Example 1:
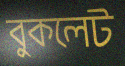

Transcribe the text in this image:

বুকলেট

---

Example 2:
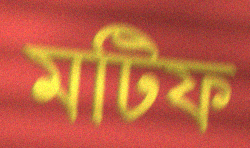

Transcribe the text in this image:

মটিফ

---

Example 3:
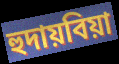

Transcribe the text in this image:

হুদায়বিয়া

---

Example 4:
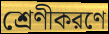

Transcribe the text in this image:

শ্রেণীকরণে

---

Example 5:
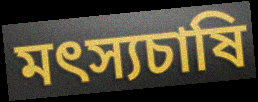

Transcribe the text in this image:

মৎস্যচাষি